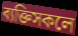
ব্যক্তিসকলে